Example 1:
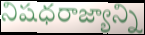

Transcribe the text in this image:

నిషధరాజ్యాన్ని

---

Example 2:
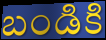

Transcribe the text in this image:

బండికి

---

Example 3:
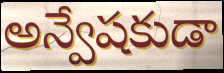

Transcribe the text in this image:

అన్వేషకుడా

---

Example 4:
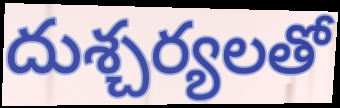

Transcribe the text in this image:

దుశ్చర్యలతో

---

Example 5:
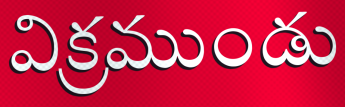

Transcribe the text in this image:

విక్రముండు